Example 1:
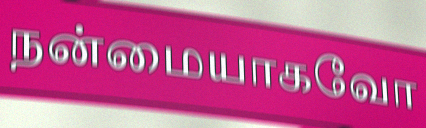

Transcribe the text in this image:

நன்மையாகவோ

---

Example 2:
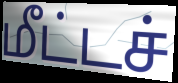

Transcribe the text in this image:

மீட்டச்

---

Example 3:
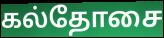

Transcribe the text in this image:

கல்தோசை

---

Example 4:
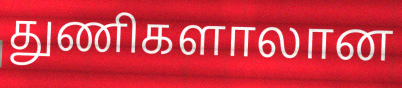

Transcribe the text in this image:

துணிகளாலான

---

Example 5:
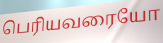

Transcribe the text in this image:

பெரியவரையோ